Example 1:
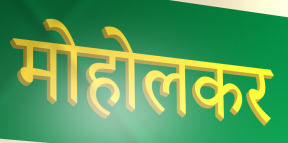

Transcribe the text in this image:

मोहोलकर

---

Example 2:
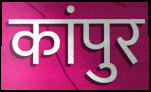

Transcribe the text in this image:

कांपुर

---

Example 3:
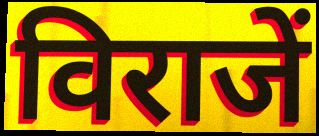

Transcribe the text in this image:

विराजें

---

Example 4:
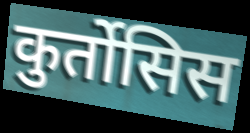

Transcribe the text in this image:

कुर्तोसिस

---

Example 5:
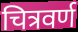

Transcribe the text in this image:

चित्रवर्ण